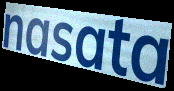
nasata